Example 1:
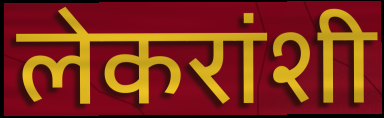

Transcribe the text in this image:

लेकरांशी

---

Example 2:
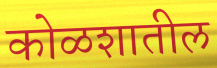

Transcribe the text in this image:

कोळशातील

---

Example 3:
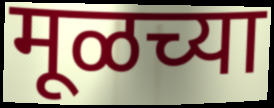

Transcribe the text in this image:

मूळच्या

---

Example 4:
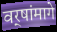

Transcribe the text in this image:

वर्षांमागे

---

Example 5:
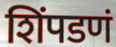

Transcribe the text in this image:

शिंपडणं